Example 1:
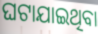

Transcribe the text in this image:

ଘଟାଯାଇଥିବା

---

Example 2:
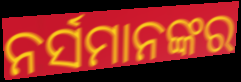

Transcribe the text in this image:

ନର୍ସମାନଙ୍କର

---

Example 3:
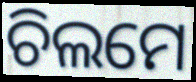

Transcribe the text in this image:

ଚିଲମେ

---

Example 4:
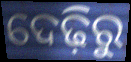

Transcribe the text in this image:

ଦେଢ଼ିରୁ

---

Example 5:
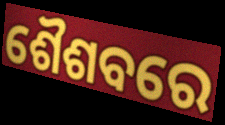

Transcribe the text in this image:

ଶୈଶବରେ